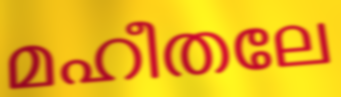
മഹീതലേ